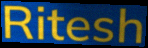
Ritesh